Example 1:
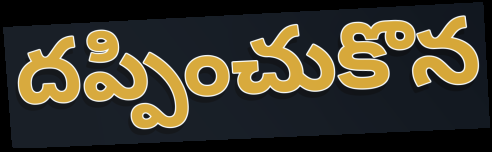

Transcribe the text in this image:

దప్పించుకొన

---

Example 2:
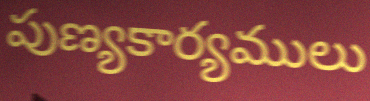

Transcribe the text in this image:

పుణ్యకార్యములు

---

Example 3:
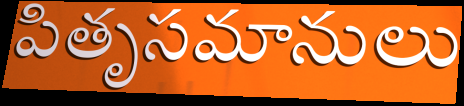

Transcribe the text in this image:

పితృసమానులు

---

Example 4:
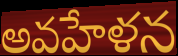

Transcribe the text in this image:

అవహేళన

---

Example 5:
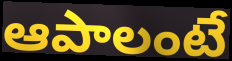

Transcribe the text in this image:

ఆపాలంటే